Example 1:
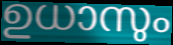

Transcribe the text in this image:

ഉധാസും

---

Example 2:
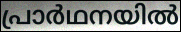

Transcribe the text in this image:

പ്രാർഥനയിൽ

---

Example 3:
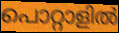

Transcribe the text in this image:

പൊറ്റാളിൽ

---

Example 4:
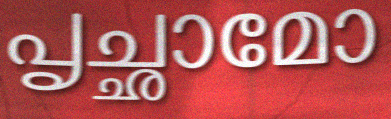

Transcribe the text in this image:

പൃച്ഛാമോ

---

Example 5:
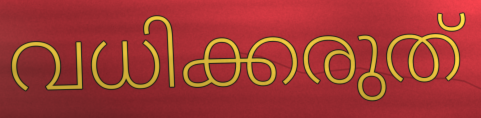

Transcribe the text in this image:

വധിക്കരുത്